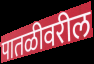
पातळीवरील